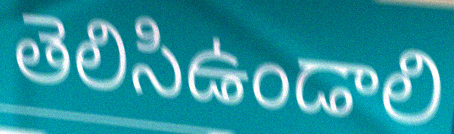
తెలిసిఉండాలి